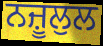
ਨਜ਼ੂਲੁਲ